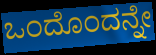
ಒಂದೊಂದನ್ನೇ